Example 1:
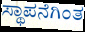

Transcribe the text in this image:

ಸ್ಥಾಪನೆಗಿಂತ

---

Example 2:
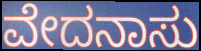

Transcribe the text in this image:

ವೇದನಾಸು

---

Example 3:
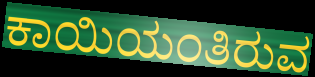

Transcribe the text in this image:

ಕಾಯಿಯಂತಿರುವ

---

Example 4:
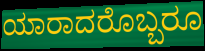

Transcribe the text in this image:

ಯಾರಾದರೊಬ್ಬರೂ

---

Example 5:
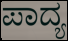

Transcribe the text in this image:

ಪಾದ್ಯ